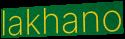
lakhano